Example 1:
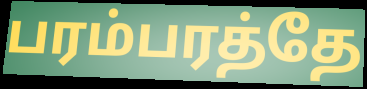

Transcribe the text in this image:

பரம்பரத்தே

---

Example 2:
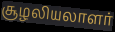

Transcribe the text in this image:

சூழலியலாளர்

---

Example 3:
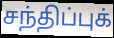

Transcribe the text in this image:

சந்திப்புக்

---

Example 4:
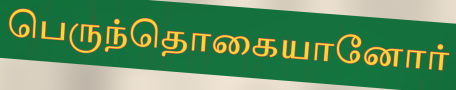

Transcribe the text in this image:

பெருந்தொகையானோர்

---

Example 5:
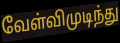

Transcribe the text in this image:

வேள்விமுடிந்து